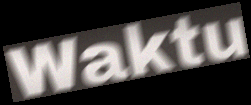
Waktu